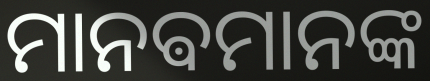
ମାନଵମାନଙ୍କ